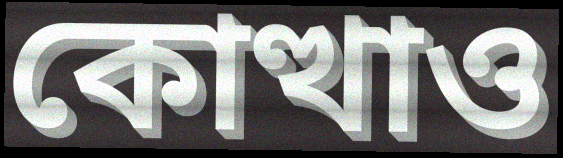
কোত্থাও